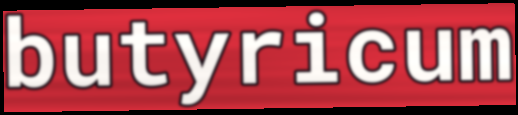
butyricum